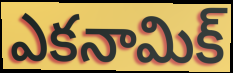
ఎకనామిక్